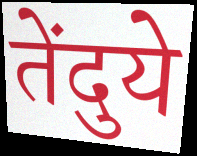
तेंदुये